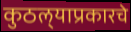
कुठल्याप्रकारचे